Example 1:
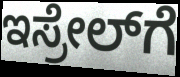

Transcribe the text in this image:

ಇಸ್ರೇಲ್‍ಗೆ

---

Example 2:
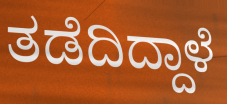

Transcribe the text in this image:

ತಡೆದಿದ್ದಾಳೆ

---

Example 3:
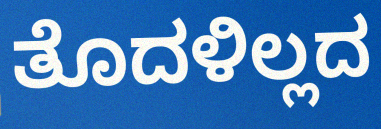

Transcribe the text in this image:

ತೊದಳಿಲ್ಲದ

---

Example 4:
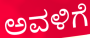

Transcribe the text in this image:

ಅವಳಿಗೆ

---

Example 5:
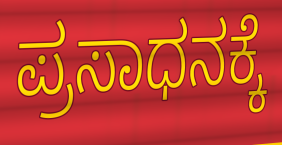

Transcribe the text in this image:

ಪ್ರಸಾಧನಕ್ಕೆ